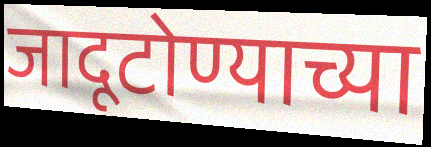
जादूटोण्याच्या